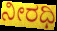
ನೀರಧಿ